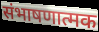
संभाषणात्मक